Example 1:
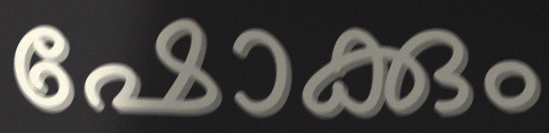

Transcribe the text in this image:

ഷോക്കും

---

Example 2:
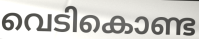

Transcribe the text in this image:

വെടികൊണ്ട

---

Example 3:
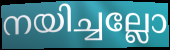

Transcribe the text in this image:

നയിച്ചല്ലോ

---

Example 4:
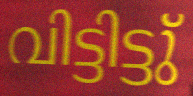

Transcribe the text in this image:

വിട്ടിട്ടു്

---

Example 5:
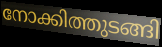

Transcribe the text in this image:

നോക്കിത്തുടങ്ങി